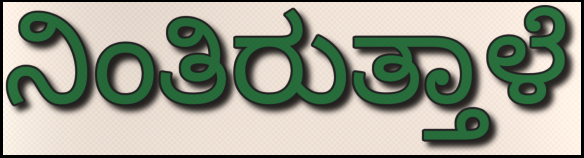
ನಿಂತಿರುತ್ತಾಳೆ